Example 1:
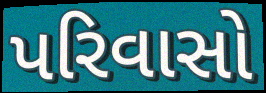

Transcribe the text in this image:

પરિવાસો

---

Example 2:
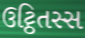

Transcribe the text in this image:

ઉટ્ઠિતસ્સ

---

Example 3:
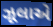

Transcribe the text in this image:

ઝૂલાએ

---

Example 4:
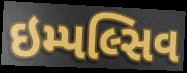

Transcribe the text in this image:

ઇમ્પલ્સિવ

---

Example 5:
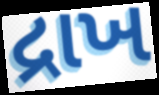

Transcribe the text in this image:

દ્રાખ